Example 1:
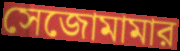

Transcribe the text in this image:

সেজোমামার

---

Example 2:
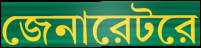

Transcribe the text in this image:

জেনারেটরে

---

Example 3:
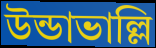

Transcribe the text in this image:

উন্ডাভাল্লি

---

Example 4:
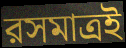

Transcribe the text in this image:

রসমাত্রই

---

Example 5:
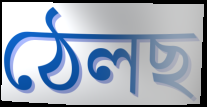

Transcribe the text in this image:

ঠেলছ